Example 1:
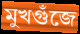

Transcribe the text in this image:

মুখগুঁজে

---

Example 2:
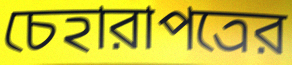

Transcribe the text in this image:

চেহারাপত্রের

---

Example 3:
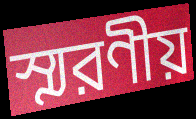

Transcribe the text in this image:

স্মরণীয়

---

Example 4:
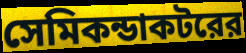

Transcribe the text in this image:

সেমিকন্ডাকটরের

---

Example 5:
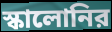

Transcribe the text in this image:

স্কালোনির